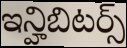
ఇన్హిబిటర్స్